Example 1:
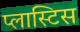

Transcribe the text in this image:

प्लास्टिस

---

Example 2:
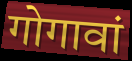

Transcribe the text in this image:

गोगावां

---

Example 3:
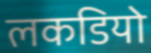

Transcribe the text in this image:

लकडियो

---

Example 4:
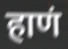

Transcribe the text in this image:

हाणं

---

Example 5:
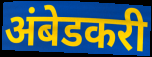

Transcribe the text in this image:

अंबेडकरी